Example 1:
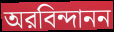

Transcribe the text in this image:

অরবিন্দানন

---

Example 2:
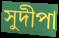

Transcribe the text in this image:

সুদীপা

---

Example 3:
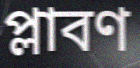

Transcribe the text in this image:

প্লাবণ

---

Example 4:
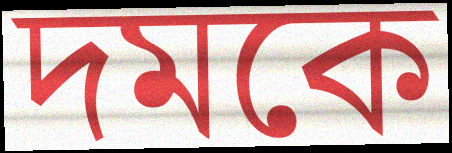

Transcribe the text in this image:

দমকে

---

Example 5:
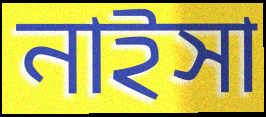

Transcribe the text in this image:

নাইসা